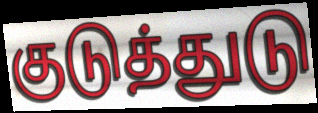
குடுத்துடு